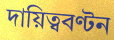
দায়িত্ববণ্টন